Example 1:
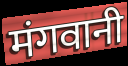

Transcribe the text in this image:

मंगवानी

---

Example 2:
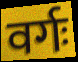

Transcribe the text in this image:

वर्गः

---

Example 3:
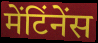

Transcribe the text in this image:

मेंटिंनेंस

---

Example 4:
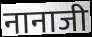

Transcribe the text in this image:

नानाजी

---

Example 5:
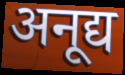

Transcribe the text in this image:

अनूद्य